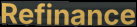
Refinance